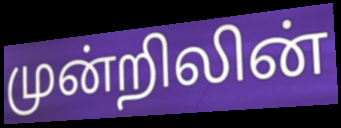
முன்றிலின்